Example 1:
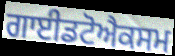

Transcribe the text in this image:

ਗਾਈਡਟੋਐਕਸਮ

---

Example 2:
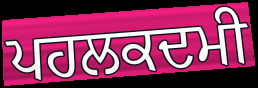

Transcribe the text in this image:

ਪਹਲਕਦਮੀ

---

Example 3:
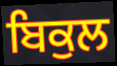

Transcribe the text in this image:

ਬਿਕੁਲ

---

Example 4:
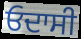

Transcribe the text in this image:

ਓਦਾਸੀ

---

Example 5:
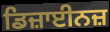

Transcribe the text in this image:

ਡਿਜ਼ਾਈਨਜ਼